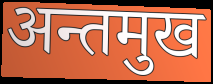
अन्तमुख